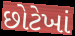
છોટેખાં